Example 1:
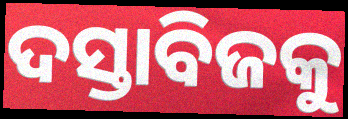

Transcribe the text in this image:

ଦସ୍ତାବିଜକୁ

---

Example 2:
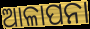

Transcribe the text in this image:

ଆଳାପନା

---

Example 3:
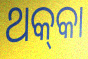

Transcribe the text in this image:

ଥକ୍‍କା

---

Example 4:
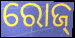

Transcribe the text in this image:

ରୋଜ୍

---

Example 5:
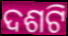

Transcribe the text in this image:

ଦଶଟି